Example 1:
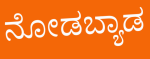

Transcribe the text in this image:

ನೋಡಬ್ಯಾಡ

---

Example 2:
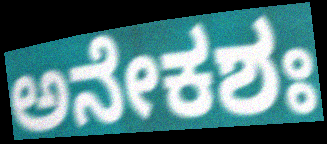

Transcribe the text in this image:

ಅನೇಕಶಃ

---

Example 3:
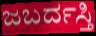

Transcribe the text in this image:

ಜಬರ್ದಸ್ತಿ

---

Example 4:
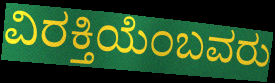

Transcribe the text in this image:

ವಿರಕ್ತಿಯೆಂಬವರು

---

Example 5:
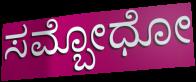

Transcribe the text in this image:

ಸಮ್ಬೋಧೋ